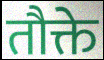
तौक्ते